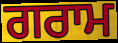
ਗਰਾਮ